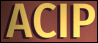
ACIP